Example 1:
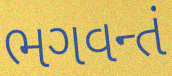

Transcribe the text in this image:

ભગવન્તં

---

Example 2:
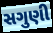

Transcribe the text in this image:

સગુણી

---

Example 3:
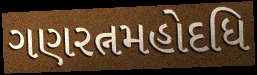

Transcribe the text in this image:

ગણરત્નમહોદધિ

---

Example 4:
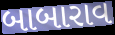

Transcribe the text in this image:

બાબારાવ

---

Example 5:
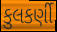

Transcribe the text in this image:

કુલકર્ણી